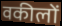
वकीलों